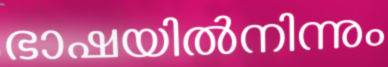
ഭാഷയിൽനിന്നും